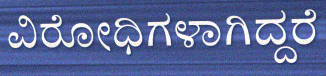
ವಿರೋಧಿಗಳಾಗಿದ್ದರೆ